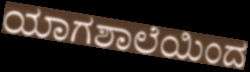
ಯಾಗಶಾಲೆಯಿಂದ